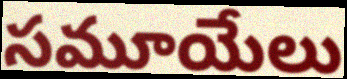
సమూయేలు